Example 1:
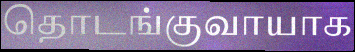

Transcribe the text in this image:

தொடங்குவாயாக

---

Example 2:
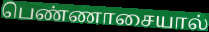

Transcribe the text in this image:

பெண்ணாசையால்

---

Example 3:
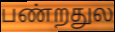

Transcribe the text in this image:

பண்றதுல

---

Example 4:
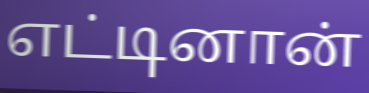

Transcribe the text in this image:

எட்டினான்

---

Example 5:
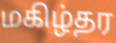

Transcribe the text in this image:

மகிழ்தர